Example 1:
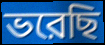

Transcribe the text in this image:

ভরেছি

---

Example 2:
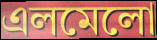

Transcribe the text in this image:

এলমেলো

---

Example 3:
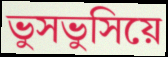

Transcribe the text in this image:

ভুসভুসিয়ে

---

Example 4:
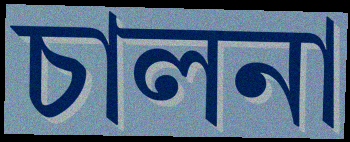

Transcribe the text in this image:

চালনা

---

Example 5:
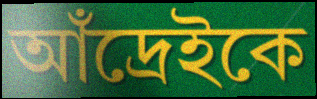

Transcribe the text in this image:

আঁদ্রেইকে